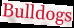
Bulldogs